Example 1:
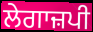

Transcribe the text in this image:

ਲੇਗਾਜ਼ਪੀ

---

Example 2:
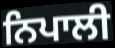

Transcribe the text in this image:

ਨਿਪਾਲੀ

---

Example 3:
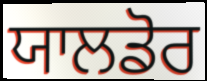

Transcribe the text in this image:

ਯਾਲਡੋਰ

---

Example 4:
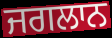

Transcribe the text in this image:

ਜਗਲਾਨ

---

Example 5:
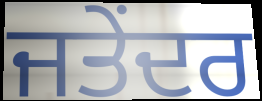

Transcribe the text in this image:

ਜਤੇਂਦਰ